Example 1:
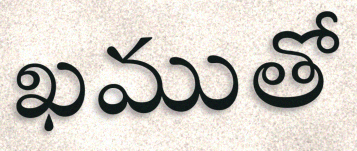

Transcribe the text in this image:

ఖముతో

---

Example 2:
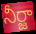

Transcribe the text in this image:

నీర్జా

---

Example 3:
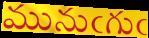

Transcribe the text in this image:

మునుఁగుఁ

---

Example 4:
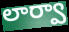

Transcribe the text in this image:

లార్వా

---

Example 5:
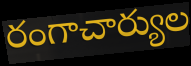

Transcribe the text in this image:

రంగాచార్యుల